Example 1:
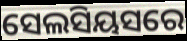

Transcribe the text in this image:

ସେଲସିୟସରେ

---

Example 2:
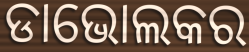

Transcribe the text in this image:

ଡାଭୋଲକର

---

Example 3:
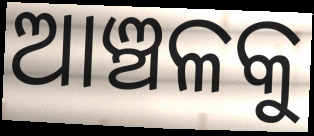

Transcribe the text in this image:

ଆଞ୍ଚଳକୁ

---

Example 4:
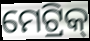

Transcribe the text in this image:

ମେଟ୍ରିକ୍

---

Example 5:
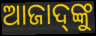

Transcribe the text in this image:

ଆଜାଦ୍‌ଙ୍କୁ